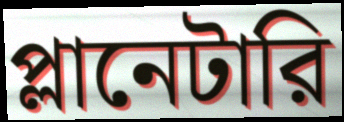
প্লানেটারি